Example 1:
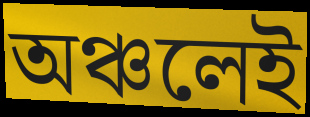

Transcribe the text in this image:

অঞ্চলেই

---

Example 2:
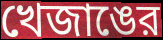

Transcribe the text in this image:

খেজাঙের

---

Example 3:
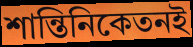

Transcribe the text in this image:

শান্তিনিকেতনই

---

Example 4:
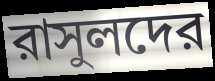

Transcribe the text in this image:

রাসুলদের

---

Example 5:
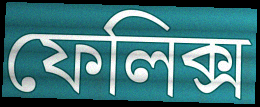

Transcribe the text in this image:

ফেলিক্স